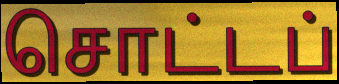
சொட்டப்